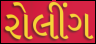
રોલીંગ